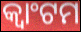
କ୍ୱାଂଟମ